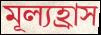
মূল্যহ্রাস